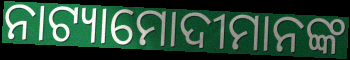
ନାଟ୍ୟାମୋଦୀମାନଙ୍କ